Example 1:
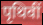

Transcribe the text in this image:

पृथिवीं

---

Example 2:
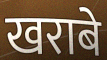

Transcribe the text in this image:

खराबे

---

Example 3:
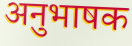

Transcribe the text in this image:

अनुभाषक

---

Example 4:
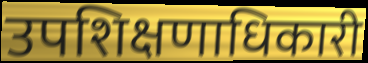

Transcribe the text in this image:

उपशिक्षणाधिकारी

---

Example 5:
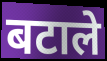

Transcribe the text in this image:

बटाले